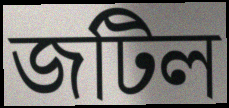
জটিল